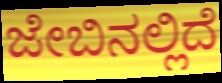
ಜೇಬಿನಲ್ಲಿದೆ